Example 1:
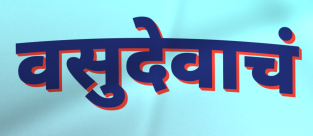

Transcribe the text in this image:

वसुदेवाचं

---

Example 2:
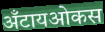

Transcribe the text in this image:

अँटायओकस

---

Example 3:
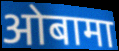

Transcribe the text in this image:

ओबामा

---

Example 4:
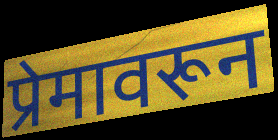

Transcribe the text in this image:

प्रेमावरून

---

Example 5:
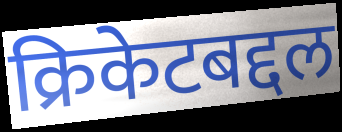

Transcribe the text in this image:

क्रिकेटबद्दल